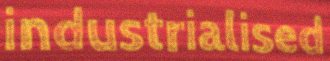
industrialised